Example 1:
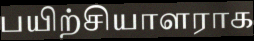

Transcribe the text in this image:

பயிற்சியாளராக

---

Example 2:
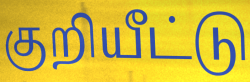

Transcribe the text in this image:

குறியீட்டு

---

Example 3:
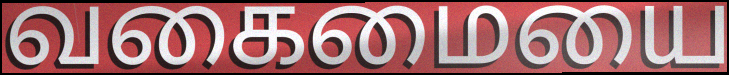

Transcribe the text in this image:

வகைமையை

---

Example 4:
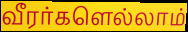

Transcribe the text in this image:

வீரர்களெல்லாம்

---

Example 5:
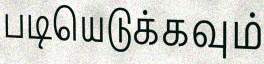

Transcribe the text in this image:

படியெடுக்கவும்